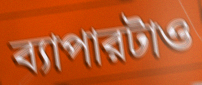
ব্যাপারটাও